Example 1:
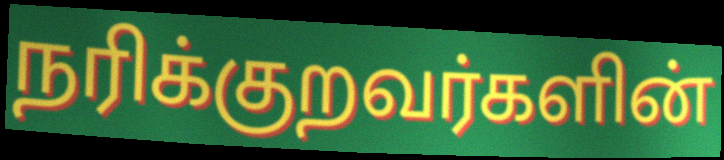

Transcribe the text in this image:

நரிக்குறவர்களின்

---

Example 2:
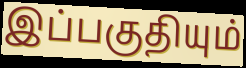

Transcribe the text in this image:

இப்பகுதியும்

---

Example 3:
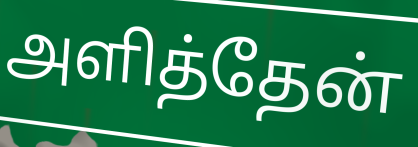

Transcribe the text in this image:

அளித்தேன்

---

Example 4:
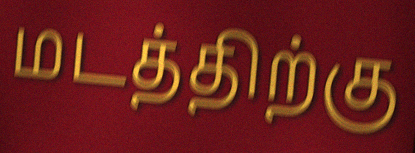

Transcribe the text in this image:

மடத்திற்கு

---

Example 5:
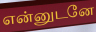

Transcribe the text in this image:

என்னுடனே